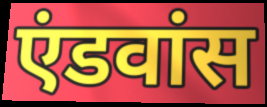
एंडवांस